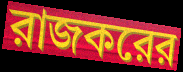
রাজকরের